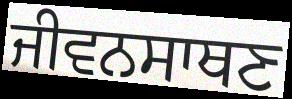
ਜੀਵਨਸਾਥਣ